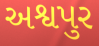
અશ્વપુર